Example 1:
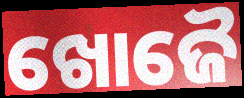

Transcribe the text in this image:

ଖୋଜୈ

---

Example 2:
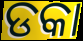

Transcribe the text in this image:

ଡକା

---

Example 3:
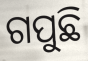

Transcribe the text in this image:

ଗପୁଛି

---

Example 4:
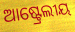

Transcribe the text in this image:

ଆଷ୍ଟ୍ରେଲୀୟ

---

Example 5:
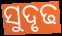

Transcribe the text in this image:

ସୁଦୃଢ